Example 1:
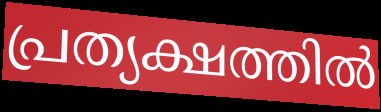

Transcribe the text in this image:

പ്രത്യക്ഷത്തിൽ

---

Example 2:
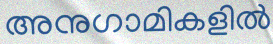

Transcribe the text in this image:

അനുഗാമികളിൽ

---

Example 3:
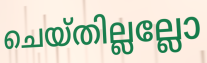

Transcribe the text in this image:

ചെയ്തില്ലല്ലോ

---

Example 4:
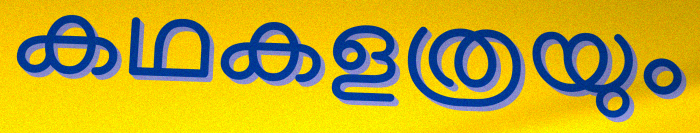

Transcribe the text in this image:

കഥകളത്രയും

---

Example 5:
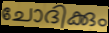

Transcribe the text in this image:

ചോദിക്കും